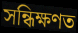
সন্ধিক্ষণত